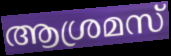
ആശ്രമസ്